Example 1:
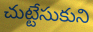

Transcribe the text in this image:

చుట్టేసుకుని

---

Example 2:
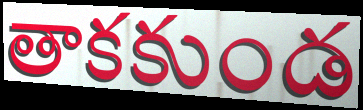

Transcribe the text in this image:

తాకకుండ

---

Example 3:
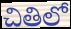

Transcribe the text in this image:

చితిలో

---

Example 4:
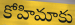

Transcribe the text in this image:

కోహిమాకు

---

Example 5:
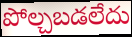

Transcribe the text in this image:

పోల్చబడలేదు